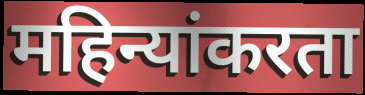
महिन्यांकरता